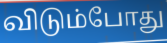
விடும்போது